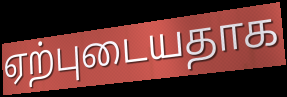
ஏற்புடையதாக